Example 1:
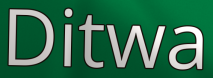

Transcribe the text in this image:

Ditwa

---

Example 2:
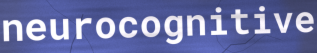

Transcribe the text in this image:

neurocognitive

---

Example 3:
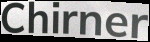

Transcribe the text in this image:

Chirner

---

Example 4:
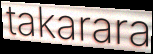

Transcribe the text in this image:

takarara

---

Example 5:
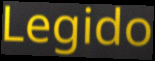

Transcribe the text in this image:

Legido